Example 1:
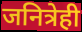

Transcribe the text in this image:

जनित्रेही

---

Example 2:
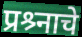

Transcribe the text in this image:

प्रश्र्नाचे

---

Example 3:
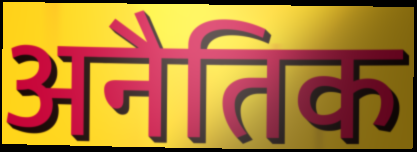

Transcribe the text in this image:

अनैतिक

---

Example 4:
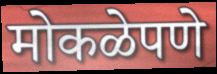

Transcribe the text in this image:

मोकळेपणे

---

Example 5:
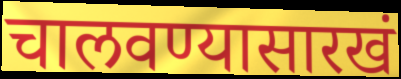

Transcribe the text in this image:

चालवण्यासारखं